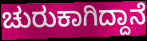
ಚುರುಕಾಗಿದ್ದಾನೆ